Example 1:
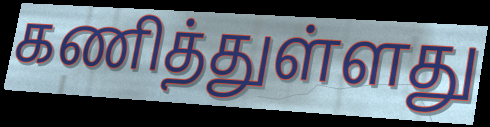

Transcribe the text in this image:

கணித்துள்ளது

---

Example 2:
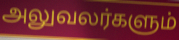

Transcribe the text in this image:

அலுவலர்களும்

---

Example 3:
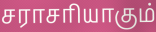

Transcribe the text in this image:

சராசரியாகும்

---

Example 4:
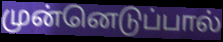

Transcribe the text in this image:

முன்னெடுப்பால்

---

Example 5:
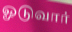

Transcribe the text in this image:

ஓடுவார்